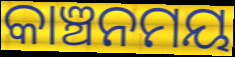
କାଞ୍ଚନମୟ